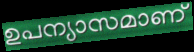
ഉപന്യാസമാണ്